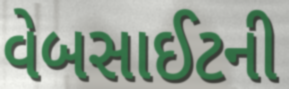
વેબસાઈટની